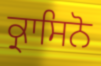
ਕ੍ਰਾਸਿਨੋ